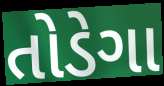
તોડેગા